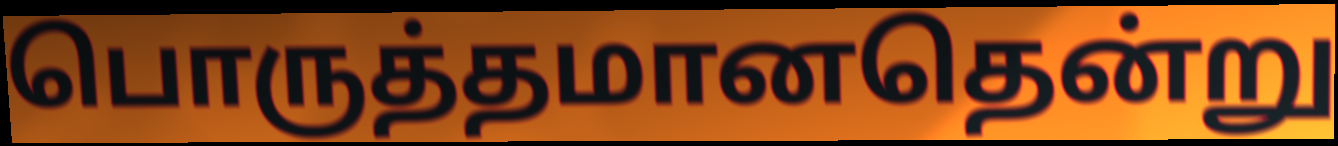
பொருத்தமானதென்று